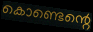
കൊണ്ടെന്റെ